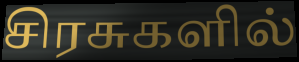
சிரசுகளில்